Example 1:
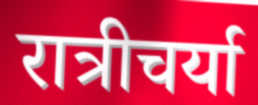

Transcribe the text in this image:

रात्रीचर्या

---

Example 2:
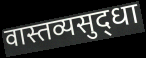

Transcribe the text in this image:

वास्तव्यसुद्धा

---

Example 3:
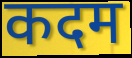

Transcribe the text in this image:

कदम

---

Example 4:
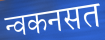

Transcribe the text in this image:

न्वकनसत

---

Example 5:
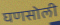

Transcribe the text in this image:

घणसोली